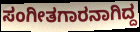
ಸಂಗೀತಗಾರನಾಗಿದ್ದ